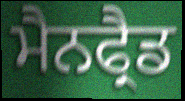
ਮੈਨਫ੍ਰੈਡ